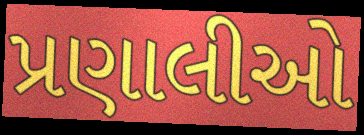
પ્રણાલીઓ